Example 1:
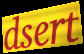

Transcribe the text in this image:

dsert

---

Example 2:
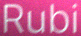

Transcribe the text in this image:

Rubi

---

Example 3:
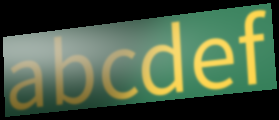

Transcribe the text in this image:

abcdef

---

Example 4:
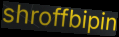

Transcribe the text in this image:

shroffbipin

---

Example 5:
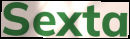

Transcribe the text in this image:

Sexta